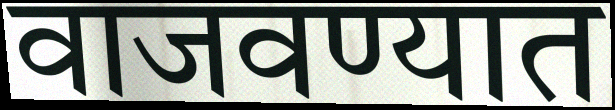
वाजवण्यात